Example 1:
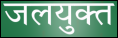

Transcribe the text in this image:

जलयुक्त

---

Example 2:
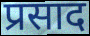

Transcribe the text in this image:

प्रसाद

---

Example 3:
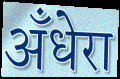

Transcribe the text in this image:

अँधेरा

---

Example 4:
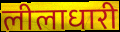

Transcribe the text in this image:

लीलाधारी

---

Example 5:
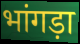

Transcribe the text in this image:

भांगड़ा